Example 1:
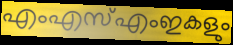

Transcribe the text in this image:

എംഎസ്എംഇകളും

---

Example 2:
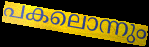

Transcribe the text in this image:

പകലൊന്നും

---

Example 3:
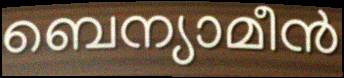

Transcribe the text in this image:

ബെന്യാമീൻ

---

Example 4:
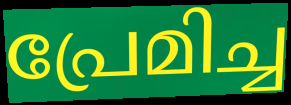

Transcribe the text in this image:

പ്രേമിച്ച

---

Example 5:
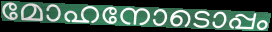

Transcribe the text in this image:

മോഹനോടൊപ്പം